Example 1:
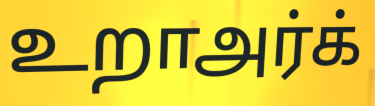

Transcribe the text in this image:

உறாஅர்க்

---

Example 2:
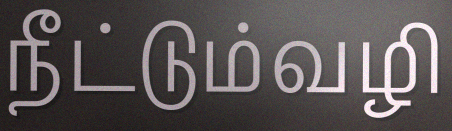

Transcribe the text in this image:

நீட்டும்வழி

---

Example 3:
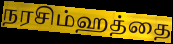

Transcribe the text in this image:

நரசிம்ஹத்தை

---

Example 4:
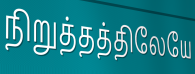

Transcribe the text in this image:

நிறுத்தத்திலேயே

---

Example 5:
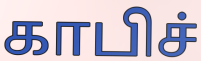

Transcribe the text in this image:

காபிச்